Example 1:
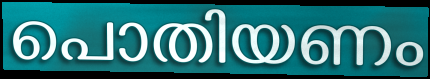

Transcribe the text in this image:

പൊതിയണം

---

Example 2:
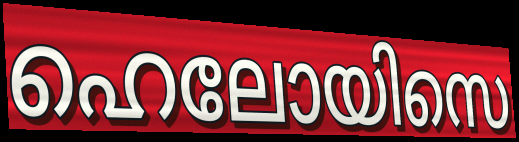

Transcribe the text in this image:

ഹെലോയിസെ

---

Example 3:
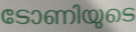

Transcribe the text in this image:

ടോണിയുടെ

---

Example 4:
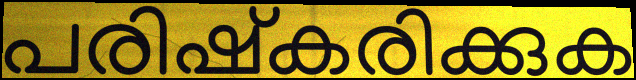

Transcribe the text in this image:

പരിഷ്കരിക്കുക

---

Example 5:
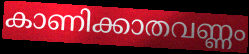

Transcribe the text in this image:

കാണിക്കാതവണ്ണം